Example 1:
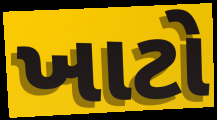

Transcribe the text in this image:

ખાટો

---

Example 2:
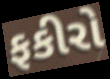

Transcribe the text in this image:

ફકીરો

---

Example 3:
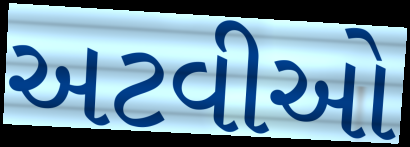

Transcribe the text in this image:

અટવીઓ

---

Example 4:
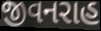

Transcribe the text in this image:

જીવનરાહ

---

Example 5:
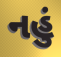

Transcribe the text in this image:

નહું